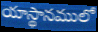
యాస్థానములో